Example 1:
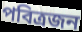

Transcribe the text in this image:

পবিত্রজন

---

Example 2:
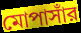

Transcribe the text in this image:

মোপাসাঁর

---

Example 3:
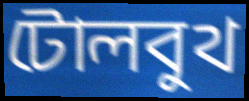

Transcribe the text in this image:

টোলবুথ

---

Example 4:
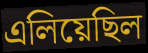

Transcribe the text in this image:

এলিয়েছিল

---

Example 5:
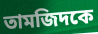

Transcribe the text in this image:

তামজিদকে